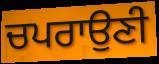
ਚਪਰਾਉਣੀ